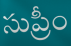
సుప్రీం